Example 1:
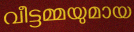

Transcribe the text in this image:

വീട്ടമ്മയുമായ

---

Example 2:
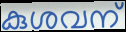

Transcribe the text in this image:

കുശവന്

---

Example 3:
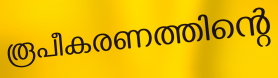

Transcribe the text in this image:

രൂപീകരണത്തിന്റെ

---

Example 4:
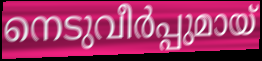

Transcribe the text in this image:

നെടുവീർപ്പുമായ്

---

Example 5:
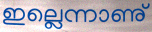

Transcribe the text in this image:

ഇല്ലെന്നാണു്